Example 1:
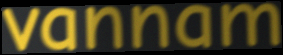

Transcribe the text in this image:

vannam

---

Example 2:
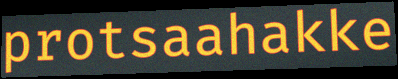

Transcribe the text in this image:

protsaahakke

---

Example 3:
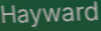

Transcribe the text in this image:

Hayward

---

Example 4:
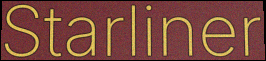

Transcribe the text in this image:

Starliner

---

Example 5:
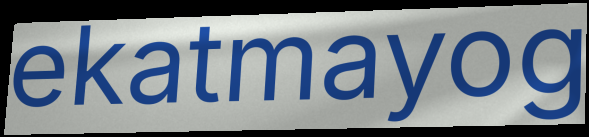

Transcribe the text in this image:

ekatmayog